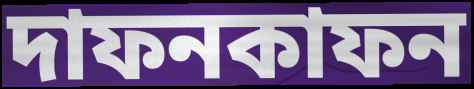
দাফনকাফন